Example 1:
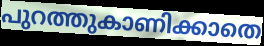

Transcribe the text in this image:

പുറത്തുകാണിക്കാതെ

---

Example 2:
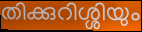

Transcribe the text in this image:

തിക്കുറിശ്ശിയും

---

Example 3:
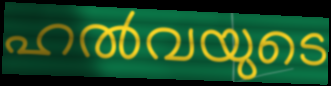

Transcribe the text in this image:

ഹൽവയുടെ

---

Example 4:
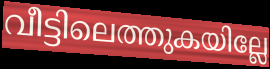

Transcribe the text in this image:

വീട്ടിലെത്തുകയില്ലേ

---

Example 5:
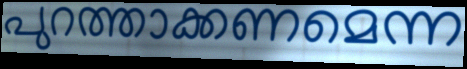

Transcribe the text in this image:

പുറത്താക്കണമെന്ന